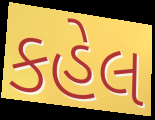
કહેલ